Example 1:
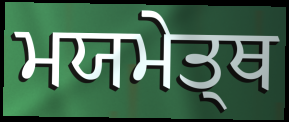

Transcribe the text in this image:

ਮਯਮੇਤ੍ਥ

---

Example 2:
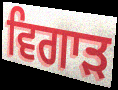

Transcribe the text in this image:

ਵਿਗਾਡ਼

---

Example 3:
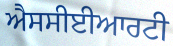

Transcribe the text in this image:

ਐਸਸੀਈਆਰਟੀ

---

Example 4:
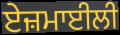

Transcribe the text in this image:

ਏਜ਼ਮਾਈਲੀ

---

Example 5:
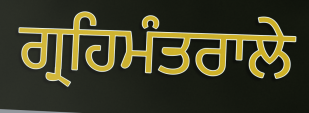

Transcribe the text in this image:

ਗ੍ਰਹਿਮੰਤਰਾਲੇ